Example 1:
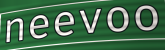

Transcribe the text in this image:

neevoo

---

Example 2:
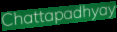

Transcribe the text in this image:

Chattapadhyay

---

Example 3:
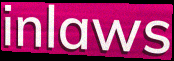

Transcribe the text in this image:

inlaws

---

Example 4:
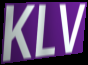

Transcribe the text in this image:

KLV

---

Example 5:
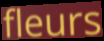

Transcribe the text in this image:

fleurs